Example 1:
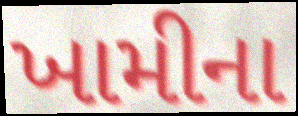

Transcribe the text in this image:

ખામીના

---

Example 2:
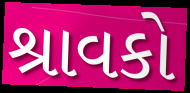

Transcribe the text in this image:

શ્રાવકો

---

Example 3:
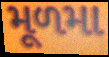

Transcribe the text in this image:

મૂળમા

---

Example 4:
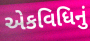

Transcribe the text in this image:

એકવિધિનું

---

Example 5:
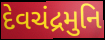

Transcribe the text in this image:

દેવચંદ્રમુનિ